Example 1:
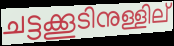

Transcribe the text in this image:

ചട്ടക്കൂടിനുള്ളില്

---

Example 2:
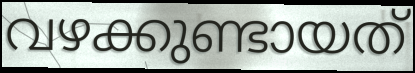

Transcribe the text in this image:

വഴക്കുണ്ടായത്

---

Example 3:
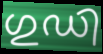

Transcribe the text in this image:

ഗുഡി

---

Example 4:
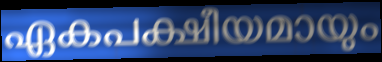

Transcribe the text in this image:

ഏകപക്ഷീയമായും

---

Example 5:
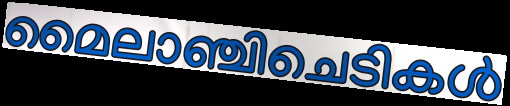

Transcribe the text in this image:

മൈലാഞ്ചിചെടികൾ